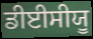
ਡੀਈਸੀਯੂ